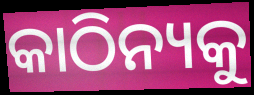
କାଠିନ୍ୟକୁ